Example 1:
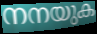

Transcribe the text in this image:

നനയുക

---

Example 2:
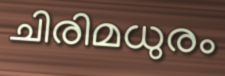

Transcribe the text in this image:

ചിരിമധുരം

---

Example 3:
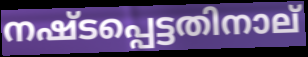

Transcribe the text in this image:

നഷ്ടപ്പെട്ടതിനാല്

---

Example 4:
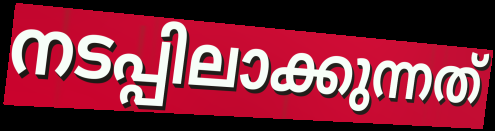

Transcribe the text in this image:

നടപ്പിലാക്കുന്നത്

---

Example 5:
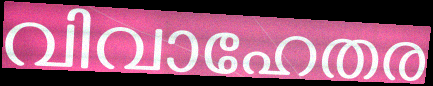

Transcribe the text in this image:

വിവാഹേതര